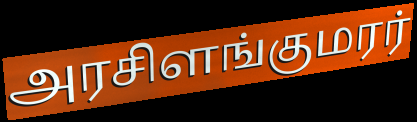
அரசிளங்குமரர்